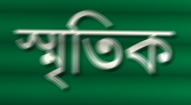
স্মৃতিক